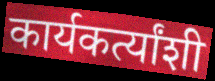
कार्यकर्त्यांशी